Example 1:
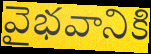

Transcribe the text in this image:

వైభవానికి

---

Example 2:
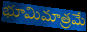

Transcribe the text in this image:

భూమిమాత్రమే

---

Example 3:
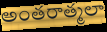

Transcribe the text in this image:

అంతరాత్మలా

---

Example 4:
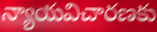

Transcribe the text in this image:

న్యాయవిచారణకు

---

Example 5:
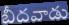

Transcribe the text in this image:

బీదవాడు